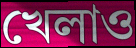
খেলাও